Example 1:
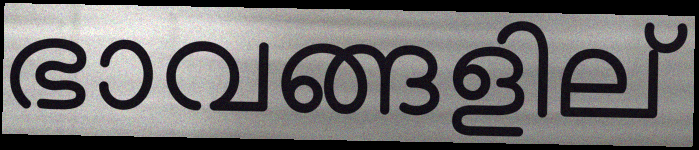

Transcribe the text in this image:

ഭാവങ്ങളില്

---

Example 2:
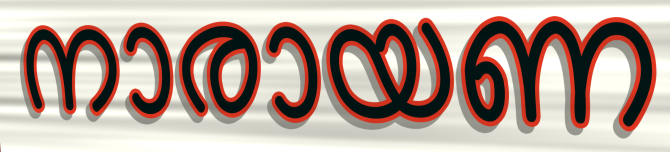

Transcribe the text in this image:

നാരായണ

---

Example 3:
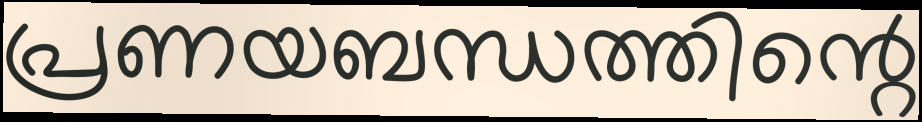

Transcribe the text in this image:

പ്രണയബന്ധത്തിന്റെ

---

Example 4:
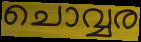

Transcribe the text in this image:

ചൊവ്വര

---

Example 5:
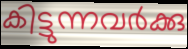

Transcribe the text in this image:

കിട്ടുന്നവർക്കു